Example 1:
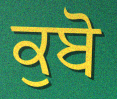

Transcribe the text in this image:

ਕੁਬੋ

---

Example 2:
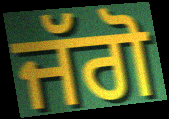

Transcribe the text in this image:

ਜੱਗੋ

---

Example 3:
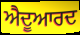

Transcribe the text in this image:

ਐਦੂਆਰਦ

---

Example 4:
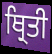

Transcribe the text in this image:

ਥ੍ਰਿਤੀ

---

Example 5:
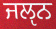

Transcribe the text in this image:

ਜਲੵਨ